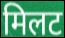
मिलट